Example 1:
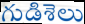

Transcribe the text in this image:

గుడిశెలు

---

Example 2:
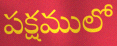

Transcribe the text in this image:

పక్షములో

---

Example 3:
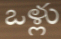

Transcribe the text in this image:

ఒళ్లు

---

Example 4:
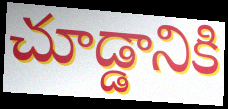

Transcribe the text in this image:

చూడ్డానికి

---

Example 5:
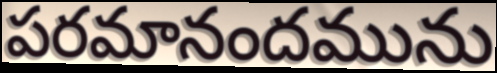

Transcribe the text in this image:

పరమానందమును